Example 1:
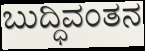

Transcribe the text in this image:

ಬುದ್ಧಿವಂತನ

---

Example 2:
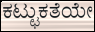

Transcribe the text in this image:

ಕಟ್ಟುಕತೆಯೇ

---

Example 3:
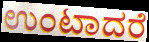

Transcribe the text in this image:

ಉಂಟಾದರೆ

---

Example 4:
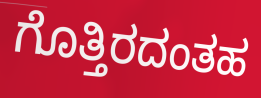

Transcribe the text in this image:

ಗೊತ್ತಿರದಂತಹ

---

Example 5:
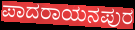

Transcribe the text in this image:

ಪಾದರಾಯನಪುರ